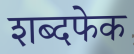
शब्दफेक